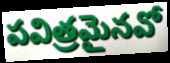
పవిత్రమైనవో